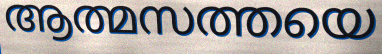
ആത്മസത്തയെ